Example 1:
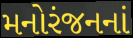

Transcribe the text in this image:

મનોરંજનનાં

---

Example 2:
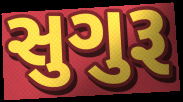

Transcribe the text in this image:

સુગુરૂ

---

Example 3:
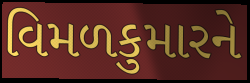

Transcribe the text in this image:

વિમળકુમારને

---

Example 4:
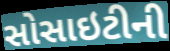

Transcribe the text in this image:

સોસાઇટીની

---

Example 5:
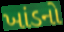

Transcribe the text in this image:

ખાંડનો